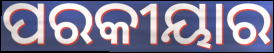
ପରକୀୟାର